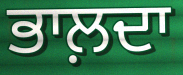
ਭਾਲ਼ਦਾ